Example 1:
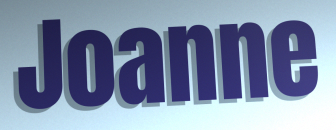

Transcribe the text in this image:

Joanne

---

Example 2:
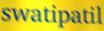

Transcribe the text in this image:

swatipatil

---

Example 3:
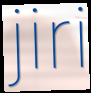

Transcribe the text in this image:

jiri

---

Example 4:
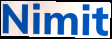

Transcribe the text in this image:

Nimit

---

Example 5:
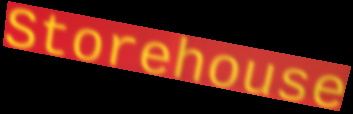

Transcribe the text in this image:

Storehouse